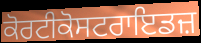
ਕੋਰਟੀਕੋਸਟਰਾਇਡਜ਼